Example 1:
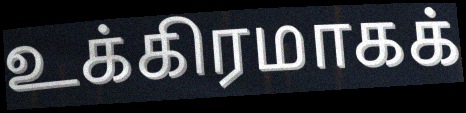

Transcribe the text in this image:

உக்கிரமாகக்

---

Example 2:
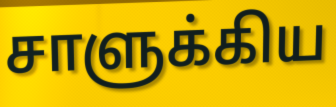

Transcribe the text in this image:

சாளுக்கிய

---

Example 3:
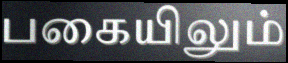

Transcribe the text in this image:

பகையிலும்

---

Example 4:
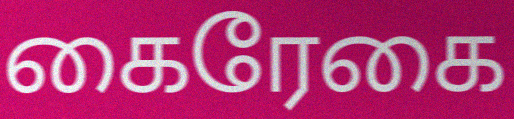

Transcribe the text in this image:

கைரேகை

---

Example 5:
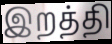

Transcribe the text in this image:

இறத்தி